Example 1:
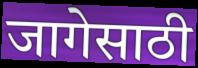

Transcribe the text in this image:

जागेसाठी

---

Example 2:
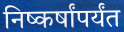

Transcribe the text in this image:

निष्कर्षांपर्यंत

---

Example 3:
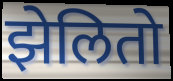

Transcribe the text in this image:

झेलितो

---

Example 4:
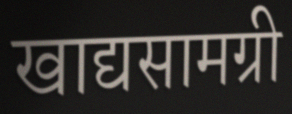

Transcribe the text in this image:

खाद्यसामग्री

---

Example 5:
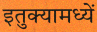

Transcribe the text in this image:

इतुक्यामध्यें